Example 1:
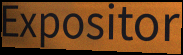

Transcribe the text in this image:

Expositor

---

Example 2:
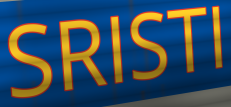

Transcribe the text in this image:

SRISTI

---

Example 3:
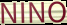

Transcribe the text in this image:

NINO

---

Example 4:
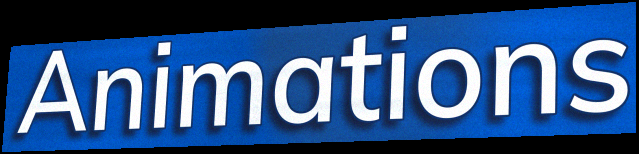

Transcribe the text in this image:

Animations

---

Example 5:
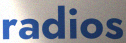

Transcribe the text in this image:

radios